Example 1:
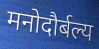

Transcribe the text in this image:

मनोदौर्बल्य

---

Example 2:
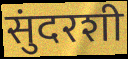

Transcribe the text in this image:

सुंदरशी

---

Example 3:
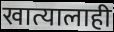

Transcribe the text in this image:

खात्यालाही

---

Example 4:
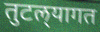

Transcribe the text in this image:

तुटल्यागत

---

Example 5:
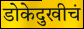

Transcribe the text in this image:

डोकेदुखीचं